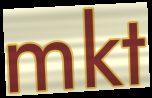
mkt